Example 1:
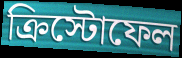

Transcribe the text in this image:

ক্রিস্টোফেল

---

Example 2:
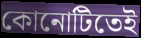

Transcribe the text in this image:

কোনোটিতেই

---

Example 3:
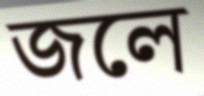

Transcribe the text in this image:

জলে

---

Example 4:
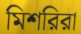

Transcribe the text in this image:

মিশরিরা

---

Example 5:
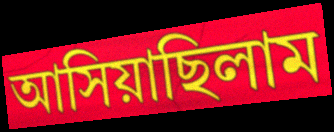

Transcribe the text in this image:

আসিয়াছিলাম